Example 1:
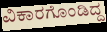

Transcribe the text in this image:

ವಿಕಾರಗೊಂಡಿದ್ದ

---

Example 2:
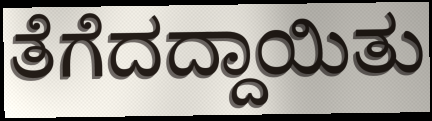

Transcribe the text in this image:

ತೆಗೆದದ್ದಾಯಿತು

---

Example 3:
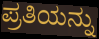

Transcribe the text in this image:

ಪ್ರತಿಯನ್ನು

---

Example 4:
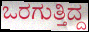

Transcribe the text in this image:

ಒರಗುತ್ತಿದ್ದ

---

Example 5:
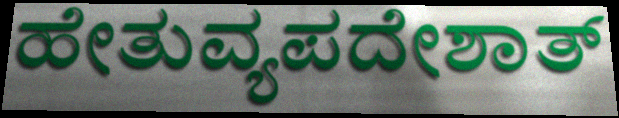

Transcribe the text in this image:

ಹೇತುವ್ಯಪದೇಶಾತ್